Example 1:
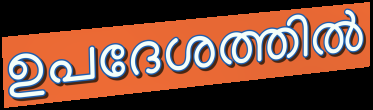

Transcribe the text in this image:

ഉപദേശത്തിൽ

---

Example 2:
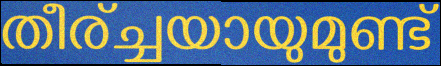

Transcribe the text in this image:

തീര്ച്ചയായുമുണ്ട്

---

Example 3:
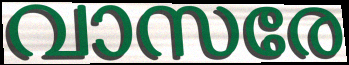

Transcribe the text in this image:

വാസരേ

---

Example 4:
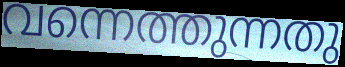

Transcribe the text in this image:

വന്നെത്തുന്നതു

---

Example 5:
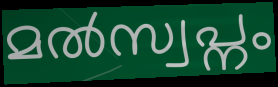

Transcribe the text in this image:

മൽസ്വപ്നം